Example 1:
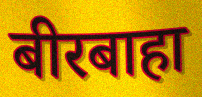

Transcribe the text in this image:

बीरबाहा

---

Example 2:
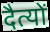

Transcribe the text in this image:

दैत्यों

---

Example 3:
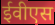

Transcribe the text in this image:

ईवीएस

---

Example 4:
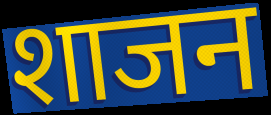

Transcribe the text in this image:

शाजन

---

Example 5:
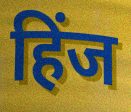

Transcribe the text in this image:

हिंज